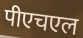
पीएचएल